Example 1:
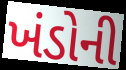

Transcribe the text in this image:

ખંડોની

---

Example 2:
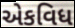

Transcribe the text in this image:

એકવિધ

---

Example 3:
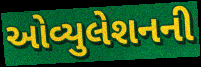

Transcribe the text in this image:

ઓવ્યુલેશનની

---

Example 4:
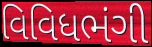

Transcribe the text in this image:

વિવિધભંગી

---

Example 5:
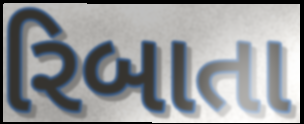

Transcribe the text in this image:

રિબાતા